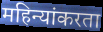
महिन्यांकरता